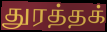
துரத்தக்